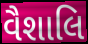
વૈશાલિ